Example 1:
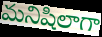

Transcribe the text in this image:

మనిషిలాగా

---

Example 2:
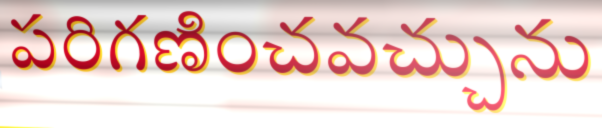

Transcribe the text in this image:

పరిగణించవచ్చును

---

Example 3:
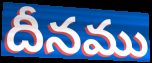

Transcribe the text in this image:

దీనము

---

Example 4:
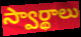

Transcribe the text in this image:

స్వార్థాలు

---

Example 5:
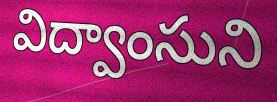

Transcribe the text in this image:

విద్వాంసుని